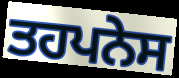
ਤਹਪਨੇਸ